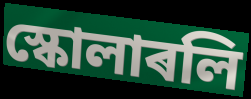
স্কোলাৰলি